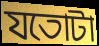
যতোটা